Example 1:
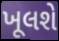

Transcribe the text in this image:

ખૂલશે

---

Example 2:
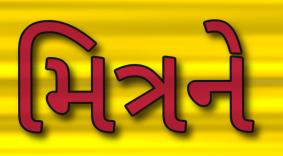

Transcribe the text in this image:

મિત્રને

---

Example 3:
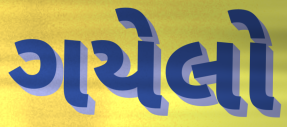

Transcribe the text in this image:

ગયેલો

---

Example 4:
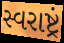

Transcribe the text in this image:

સ્વરાષ્ટ્રં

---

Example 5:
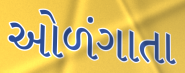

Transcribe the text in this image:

ઓળંગાતા